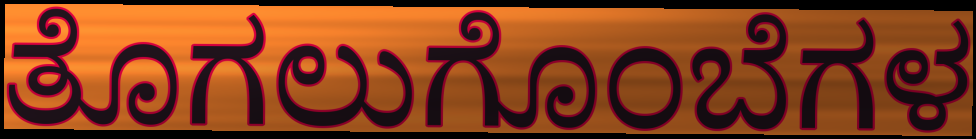
ತೊಗಲುಗೊಂಬೆಗಳ